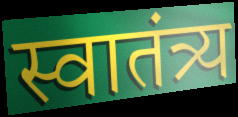
स्वातंत्र्य